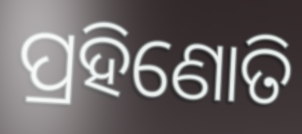
ପ୍ରହିଣୋତି